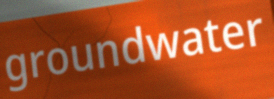
groundwater